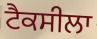
ਟੈਕਸੀਲਾ